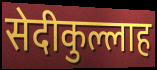
सेदीकुल्लाह